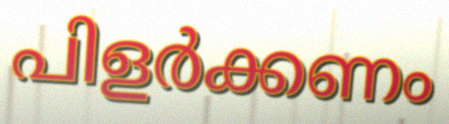
പിളർക്കണം